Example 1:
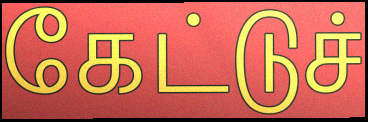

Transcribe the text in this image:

கேட்டுச்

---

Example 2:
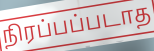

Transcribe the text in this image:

நிரப்பப்படாத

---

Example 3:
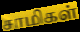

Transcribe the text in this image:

சாமிகள்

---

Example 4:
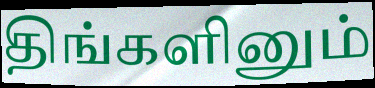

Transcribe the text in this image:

திங்களினும்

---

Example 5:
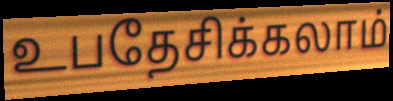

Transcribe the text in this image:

உபதேசிக்கலாம்